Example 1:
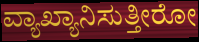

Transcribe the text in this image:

ವ್ಯಾಖ್ಯಾನಿಸುತ್ತೀರೋ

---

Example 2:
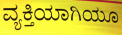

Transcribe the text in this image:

ವ್ಯಕ್ತಿಯಾಗಿಯೂ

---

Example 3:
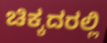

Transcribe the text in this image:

ಚಿಕ್ಕದರಲ್ಲಿ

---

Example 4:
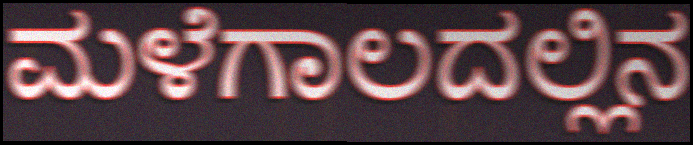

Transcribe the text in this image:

ಮಳೆಗಾಲದಲ್ಲಿನ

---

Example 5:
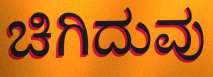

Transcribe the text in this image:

ಚಿಗಿದುವು